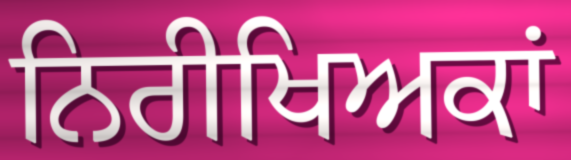
ਨਿਰੀਖਿਅਕਾਂ